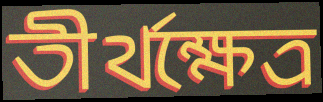
তীর্থক্ষেত্র